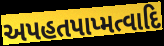
અપહતપાપ્મત્વાદિ